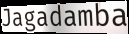
Jagadamba